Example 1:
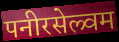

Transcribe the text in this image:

पनीरसेल्वम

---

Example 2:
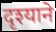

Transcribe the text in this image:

दृश्याने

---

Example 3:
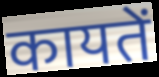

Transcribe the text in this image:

कायतें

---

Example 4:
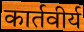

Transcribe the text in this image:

कार्तवीर्य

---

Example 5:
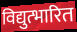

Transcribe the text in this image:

विद्युत्भारित